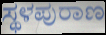
ಸ್ಥಳಪುರಾಣ